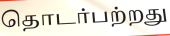
தொடர்பற்றது